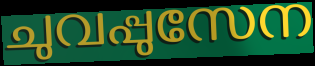
ചുവപ്പുസേന